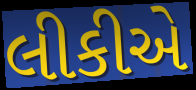
લીકીએ